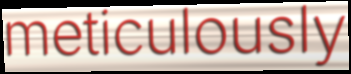
meticulously